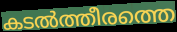
കടൽത്തീരത്തെ